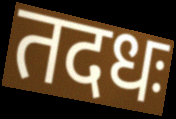
तदधः